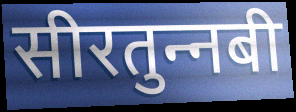
सीरतुन्नबी